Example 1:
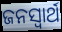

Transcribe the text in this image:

ଜନସ୍ଵାର୍ଥ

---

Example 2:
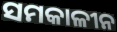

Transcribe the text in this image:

ସମକାଳୀନ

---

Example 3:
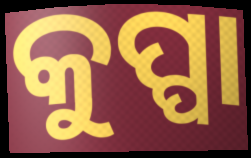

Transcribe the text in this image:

କୁପ୍ପା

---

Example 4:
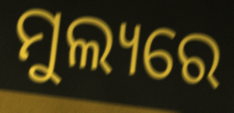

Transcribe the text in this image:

ମୁଲ୍ୟରେ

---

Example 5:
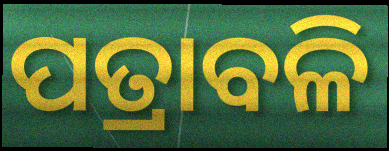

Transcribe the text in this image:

ପତ୍ରାବଳି